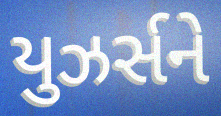
યુઝર્સને